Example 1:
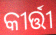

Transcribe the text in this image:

କୀର୍ତ୍ତୀ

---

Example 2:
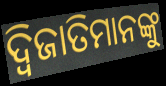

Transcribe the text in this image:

ଦ୍ୱିଜାତିମାନଙ୍କୁ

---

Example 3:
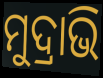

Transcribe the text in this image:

ମୁଦ୍ରାଭି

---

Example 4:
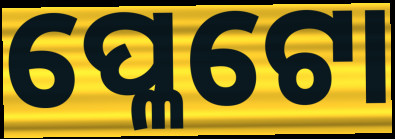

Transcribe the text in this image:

ପ୍ଳେଟୋ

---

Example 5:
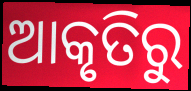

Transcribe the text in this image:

ଆକୃତିରୁ